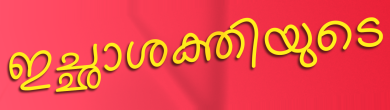
ഇച്ഛാശക്തിയുടെ